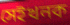
সেইখনক